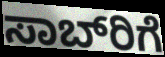
ಸಾಬ್‌ರಿಗೆ